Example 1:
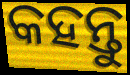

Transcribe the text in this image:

କହନ୍ତୁ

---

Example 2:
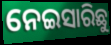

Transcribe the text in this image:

ନେଇସାରିଛୁ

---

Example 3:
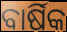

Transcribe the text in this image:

ବାର୍ଷିକ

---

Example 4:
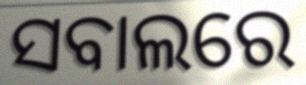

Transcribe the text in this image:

ସବାଲରେ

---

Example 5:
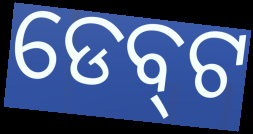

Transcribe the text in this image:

ଡେବ୍‌ଟ